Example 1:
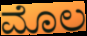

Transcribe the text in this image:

ಮೊಲ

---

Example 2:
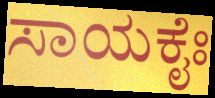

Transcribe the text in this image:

ಸಾಯಕೈಃ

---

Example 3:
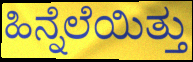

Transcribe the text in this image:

ಹಿನ್ನೆಲೆಯಿತ್ತು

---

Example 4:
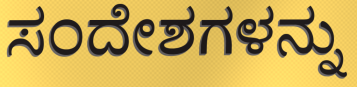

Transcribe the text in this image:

ಸಂದೇಶಗಳನ್ನು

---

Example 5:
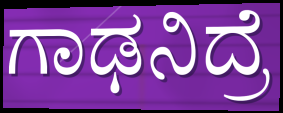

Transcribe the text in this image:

ಗಾಢನಿದ್ರೆ